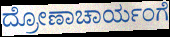
ದ್ರೋಣಾಚಾರ್ಯಂಗೆ